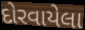
દોરવાયેલા